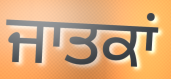
ਜਾਤਕਾਂ